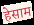
हेसाम